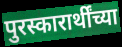
पुरस्कारार्थींच्या